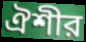
ঐশীর